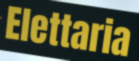
Elettaria